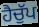
ਹੈਚੁੱਪ